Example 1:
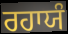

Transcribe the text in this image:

ਰਹਾਯੰ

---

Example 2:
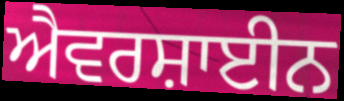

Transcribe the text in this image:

ਐਵਰਸ਼ਾਈਨ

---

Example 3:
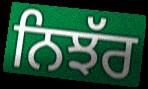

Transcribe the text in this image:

ਨਿਝੱਰ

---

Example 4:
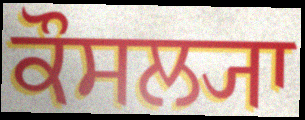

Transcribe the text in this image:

ਕੌਸਲ੍ਯਾ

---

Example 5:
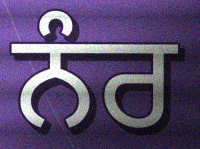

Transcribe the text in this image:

ਨੰਰ